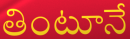
తింటూనే